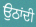
ਉਠਾਂਦੀ